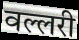
वल्लरी